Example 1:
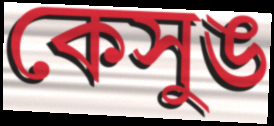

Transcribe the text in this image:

কেসুঙ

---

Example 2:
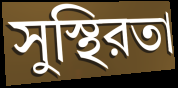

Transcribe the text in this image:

সুস্থিরতা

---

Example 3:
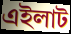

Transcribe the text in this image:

এইলাট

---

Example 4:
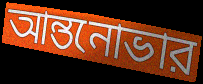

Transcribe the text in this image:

আন্তনোভার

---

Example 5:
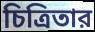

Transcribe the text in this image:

চিত্রিতার